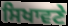
ਸਿਖਾਵਣੇ